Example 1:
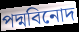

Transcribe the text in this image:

পদ্মবিনোদ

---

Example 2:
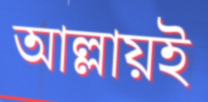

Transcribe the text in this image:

আল্লায়ই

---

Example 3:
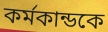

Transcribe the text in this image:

কর্মকান্ডকে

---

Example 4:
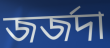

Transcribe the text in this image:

জর্জদা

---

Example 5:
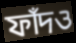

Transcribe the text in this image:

ফাঁদও